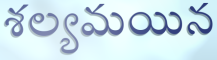
శల్యమయిన